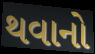
થવાનો